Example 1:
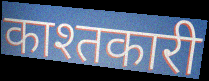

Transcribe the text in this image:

काश्तकारी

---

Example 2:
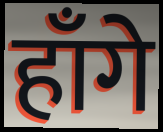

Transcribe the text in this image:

हाँगे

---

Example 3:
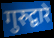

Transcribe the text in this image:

गुरुद्वारे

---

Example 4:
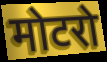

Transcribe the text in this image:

मोटरो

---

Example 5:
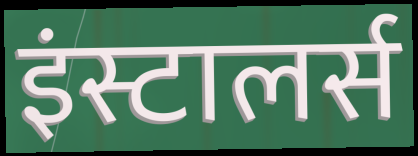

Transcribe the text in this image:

इंस्टालर्स